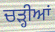
ਚੜ੍ਹੀਆਂ